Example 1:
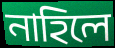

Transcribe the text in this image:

নাহিলে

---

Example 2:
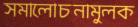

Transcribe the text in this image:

সমালোচনামুলক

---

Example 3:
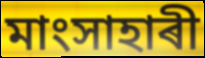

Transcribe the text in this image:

মাংসাহাৰী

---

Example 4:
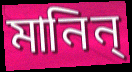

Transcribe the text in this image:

মানিন্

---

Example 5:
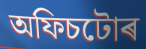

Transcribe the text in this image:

অফিচটোৰ